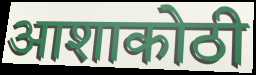
आशाकोठी